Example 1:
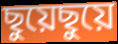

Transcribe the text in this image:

ছুয়েছুয়ে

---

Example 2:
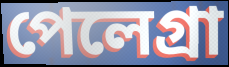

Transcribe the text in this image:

পেলেগ্রা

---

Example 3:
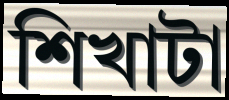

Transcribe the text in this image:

শিখাটা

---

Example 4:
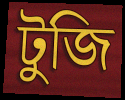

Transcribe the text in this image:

টুজি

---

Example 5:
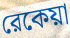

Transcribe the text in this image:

রেকেয়া